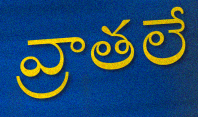
వ్రాతలే